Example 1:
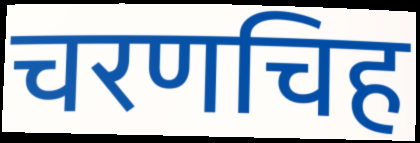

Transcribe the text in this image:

चरणचिह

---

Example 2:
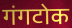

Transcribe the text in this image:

गंगटोक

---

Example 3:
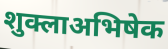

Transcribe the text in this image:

शुक्लाअभिषेक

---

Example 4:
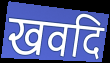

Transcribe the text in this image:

खवदि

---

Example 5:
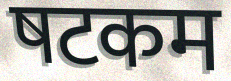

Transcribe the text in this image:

षटकम